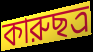
কারুছত্র